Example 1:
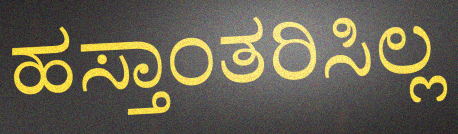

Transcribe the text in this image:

ಹಸ್ತಾಂತರಿಸಿಲ್ಲ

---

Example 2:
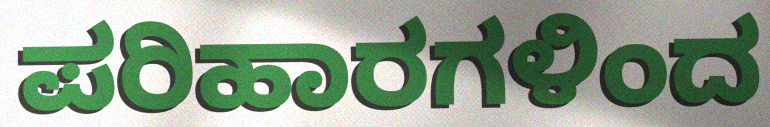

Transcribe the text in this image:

ಪರಿಹಾರಗಳಿಂದ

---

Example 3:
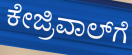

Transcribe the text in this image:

ಕೇಜ್ರಿವಾಲ್‍ಗೆ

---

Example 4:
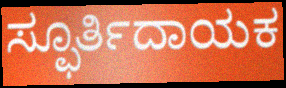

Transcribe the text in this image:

ಸ್ಫೂರ್ತಿದಾಯಕ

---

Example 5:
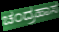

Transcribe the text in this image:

ಚಂದ್ರಹಾಸ